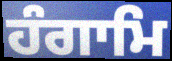
ਹੰਗਾਮਿ